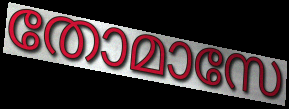
തോമാസേ